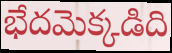
భేదమెక్కడిది